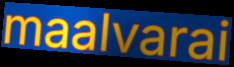
maalvarai